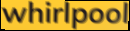
whirlpool